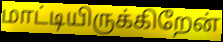
மாட்டியிருக்கிறேன்